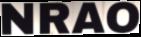
NRAO